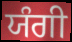
ਯੰਗੀ